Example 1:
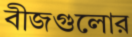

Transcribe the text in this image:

বীজগুলোর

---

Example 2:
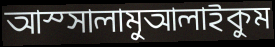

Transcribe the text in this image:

আস্সালামুআলাইকুম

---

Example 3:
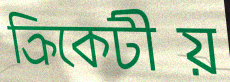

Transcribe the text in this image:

ক্রিকেটীয়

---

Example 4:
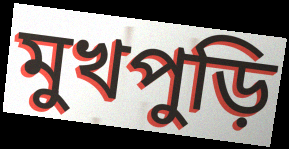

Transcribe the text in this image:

মুখপুড়ি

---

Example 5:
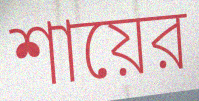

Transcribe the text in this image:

শায়ের